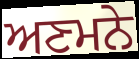
ਅਣਮਨੇ